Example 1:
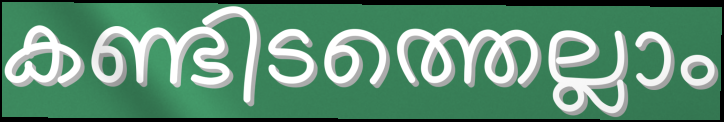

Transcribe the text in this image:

കണ്ടിടത്തെല്ലാം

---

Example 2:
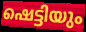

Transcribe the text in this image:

ഷെട്ടിയും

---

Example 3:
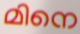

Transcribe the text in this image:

മിനെ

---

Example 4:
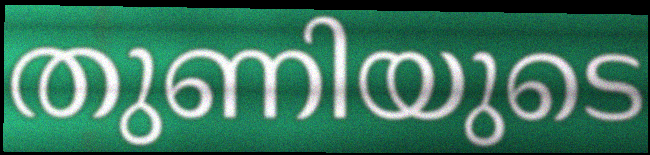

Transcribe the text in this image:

തുണിയുടെ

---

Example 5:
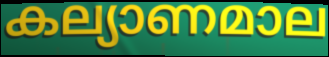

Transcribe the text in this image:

കല്യാണമാല